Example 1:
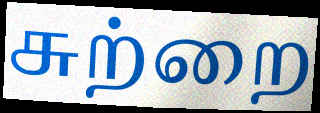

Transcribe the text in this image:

சுற்றை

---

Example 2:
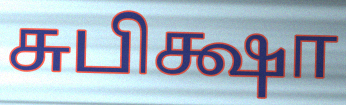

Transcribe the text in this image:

சுபிக்ஷா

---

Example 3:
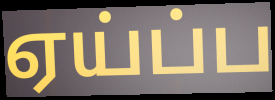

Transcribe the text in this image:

ஏய்ப்ப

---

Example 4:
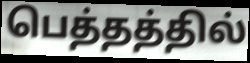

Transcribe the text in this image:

பெத்தத்தில்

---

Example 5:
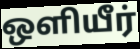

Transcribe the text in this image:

ஒளியீர்